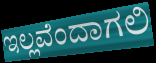
ಇಲ್ಲವೆಂದಾಗಲಿ